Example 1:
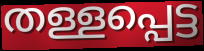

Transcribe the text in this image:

തള്ളപ്പെട്ട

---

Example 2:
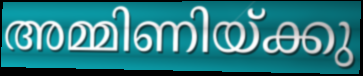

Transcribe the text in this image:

അമ്മിണിയ്ക്കു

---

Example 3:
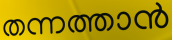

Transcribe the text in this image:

തന്നത്താൻ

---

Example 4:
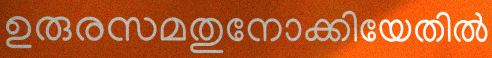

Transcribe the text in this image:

ഉരുരസമതുനോക്കിയേതിൽ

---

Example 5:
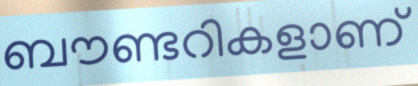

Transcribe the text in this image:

ബൗണ്ടറികളാണ്